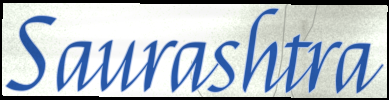
Saurashtra